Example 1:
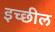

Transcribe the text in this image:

इच्छील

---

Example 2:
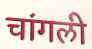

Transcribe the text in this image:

चांगली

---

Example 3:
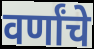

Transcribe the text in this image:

वर्णांचे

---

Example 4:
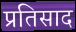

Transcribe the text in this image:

प्रतिसाद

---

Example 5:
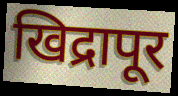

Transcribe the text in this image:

खिद्रापूर